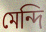
মেন্দি